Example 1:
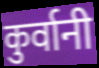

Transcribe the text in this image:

कुर्वानी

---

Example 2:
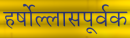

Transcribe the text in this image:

हर्षोल्लासपूर्वक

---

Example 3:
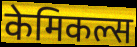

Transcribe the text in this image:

केमिकल्स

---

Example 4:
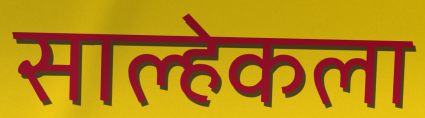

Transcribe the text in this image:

साल्हेकला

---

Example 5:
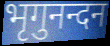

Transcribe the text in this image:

भृगुनन्दन